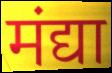
मंद्या